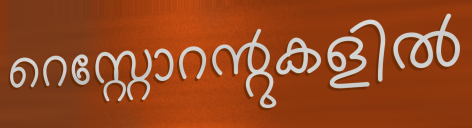
റെസ്റ്റോറന്റുകളിൽ